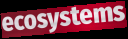
ecosystems